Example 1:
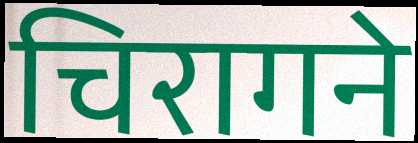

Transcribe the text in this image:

चिरागने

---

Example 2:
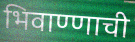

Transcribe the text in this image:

भिवाण्णाची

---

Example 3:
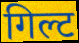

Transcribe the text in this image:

गिल्ट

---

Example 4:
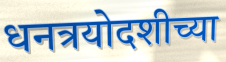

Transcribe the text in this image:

धनत्रयोदशीच्या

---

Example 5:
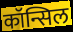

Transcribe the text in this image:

कॉन्सिल